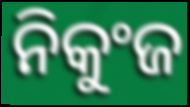
ନିକୁଂଜ